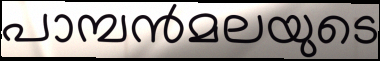
പാമ്പൻമലയുടെ